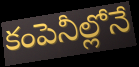
కంపెనీల్లోనే